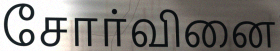
சோர்வினை